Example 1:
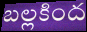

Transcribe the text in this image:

బల్లకింద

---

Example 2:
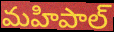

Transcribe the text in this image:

మహిపాల్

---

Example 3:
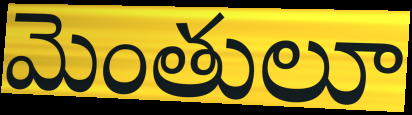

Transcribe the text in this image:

మెంతులూ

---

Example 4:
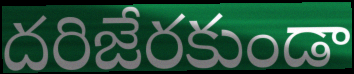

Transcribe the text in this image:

దరిజేరకుండా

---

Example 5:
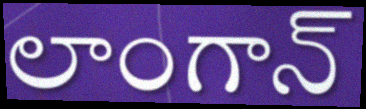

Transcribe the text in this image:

లాంగాన్